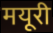
मयूरी